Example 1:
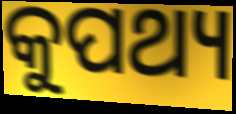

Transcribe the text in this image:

କୁପଥ୍ୟ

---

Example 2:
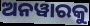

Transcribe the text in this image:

ଅନୱାରକୁ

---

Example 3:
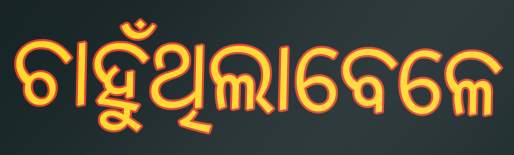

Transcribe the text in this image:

ଚାହୁଁଥିଲାବେଳେ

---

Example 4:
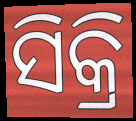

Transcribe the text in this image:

ସିକ୍ରି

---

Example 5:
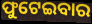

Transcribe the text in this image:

ଫୁଟେଇବାର